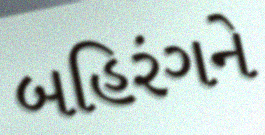
બહિરંગને